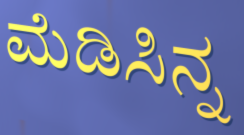
ಮೆಡಿಸಿನ್ನ